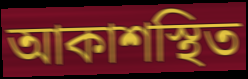
আকাশস্থিত